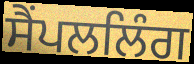
ਸੈਂਪਲਲਿੰਗ